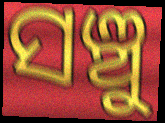
ସଞ୍ଚୁ